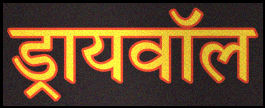
ड्रायवॉल